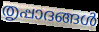
തൃപ്പാദങ്ങൾ